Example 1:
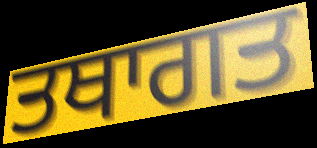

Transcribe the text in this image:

ਤਥਾਗਤ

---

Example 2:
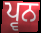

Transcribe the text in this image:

ਪ੍ਵਨ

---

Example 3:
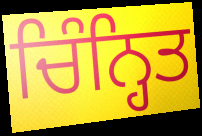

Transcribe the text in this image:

ਚਿੰਨ੍ਹਿਤ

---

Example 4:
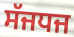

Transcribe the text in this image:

ਸੱਜਧਜ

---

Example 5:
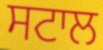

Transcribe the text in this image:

ਸਟਾਲ